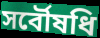
সর্বৌষধি